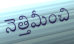
నెత్తిమీంచి